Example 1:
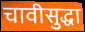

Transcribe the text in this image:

चावीसुद्धा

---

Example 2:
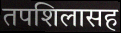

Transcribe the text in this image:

तपशिलासह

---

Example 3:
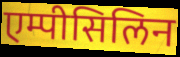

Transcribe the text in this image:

एम्पीसिलिन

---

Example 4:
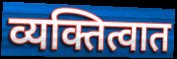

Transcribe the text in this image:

व्यक्तित्वात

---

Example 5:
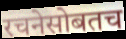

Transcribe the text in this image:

रचनेसोबतच